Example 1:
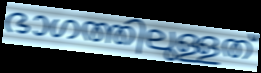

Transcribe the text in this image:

ഭാഗത്തിലുള്ളത്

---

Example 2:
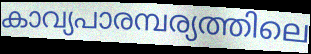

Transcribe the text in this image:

കാവ്യപാരമ്പര്യത്തിലെ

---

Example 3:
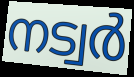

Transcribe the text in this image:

നട്വർ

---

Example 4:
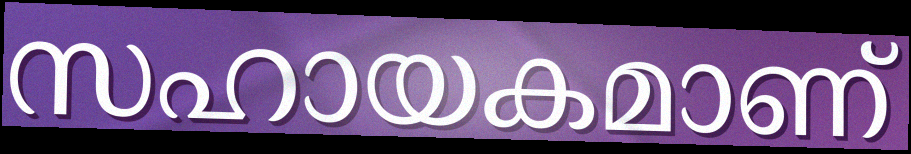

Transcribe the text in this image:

സഹായകമാണ്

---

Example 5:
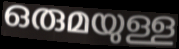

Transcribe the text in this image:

ഒരുമയുള്ള